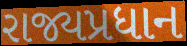
રાજ્યપ્રધાન